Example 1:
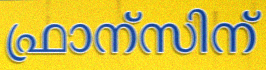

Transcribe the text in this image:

ഫ്രാന്സിന്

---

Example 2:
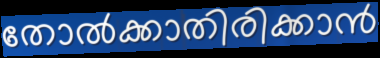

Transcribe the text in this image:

തോൽക്കാതിരിക്കാൻ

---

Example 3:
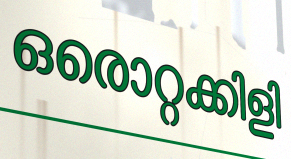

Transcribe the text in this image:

ഒരൊറ്റക്കിളി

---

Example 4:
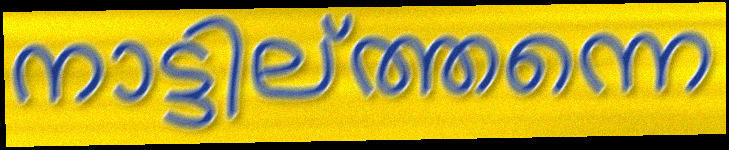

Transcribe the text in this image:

നാട്ടില്ത്തന്നെ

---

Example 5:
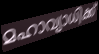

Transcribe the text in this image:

മഹാവ്യാധിക്ക്